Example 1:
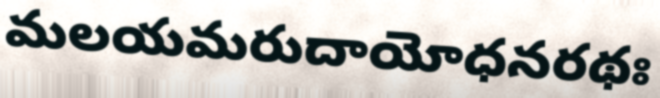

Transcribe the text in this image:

మలయమరుదాయోధనరథః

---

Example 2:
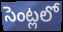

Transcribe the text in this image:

సెంట్లలో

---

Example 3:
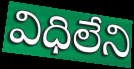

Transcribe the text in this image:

విధిలేని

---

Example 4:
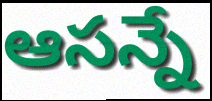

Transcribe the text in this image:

ఆసన్నే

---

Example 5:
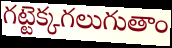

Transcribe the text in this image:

గట్టెక్కగలుగుతాం